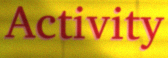
Activity